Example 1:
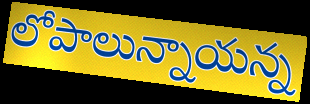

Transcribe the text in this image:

లోపాలున్నాయన్న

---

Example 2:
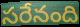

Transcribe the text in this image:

సరేనంది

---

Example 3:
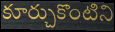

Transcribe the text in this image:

కూర్చుకొంటిని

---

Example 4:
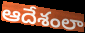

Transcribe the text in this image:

ఆదేశంలా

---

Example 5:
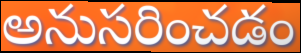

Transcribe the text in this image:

అనుసరించడం